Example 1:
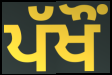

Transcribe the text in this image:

ਪੱਖੌਂ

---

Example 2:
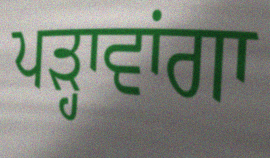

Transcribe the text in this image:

ਪੜ੍ਹਾਵਾਂਗਾ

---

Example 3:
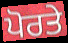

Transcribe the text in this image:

ਪੋਰਤੇ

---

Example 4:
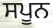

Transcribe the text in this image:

ਸਪੂਨ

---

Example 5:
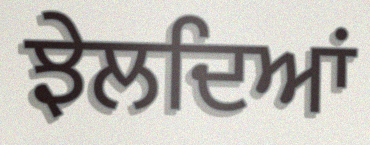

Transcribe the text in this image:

ਝੇਲਦਿਆਂ